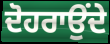
ਦੋਹਰਾਉਂਦੇ